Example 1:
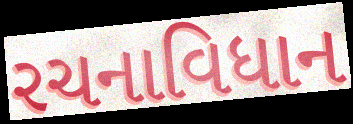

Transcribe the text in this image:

રચનાવિધાન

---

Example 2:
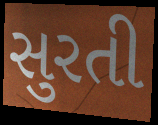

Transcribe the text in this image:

સુરતી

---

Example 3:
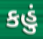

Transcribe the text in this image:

કહું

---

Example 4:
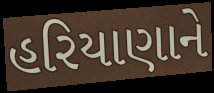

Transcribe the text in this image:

હરિયાણાને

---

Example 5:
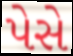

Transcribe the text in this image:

પેસે